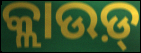
କ୍ଲାଉଡ଼୍